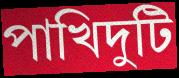
পাখিদুটি